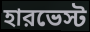
হারভেস্ট